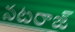
నటరాజ్